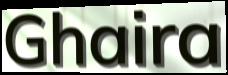
Ghaira